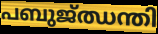
പബുജ്ഝന്തി